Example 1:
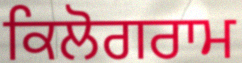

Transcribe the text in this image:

ਕਿਲੋਗਰਾਮ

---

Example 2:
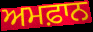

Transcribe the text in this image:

ਅਮਫ਼ਾਨ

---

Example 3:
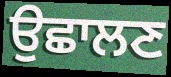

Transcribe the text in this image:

ਉਛਾਲਣ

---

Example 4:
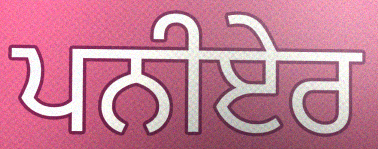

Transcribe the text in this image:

ਪਨੀਏਰ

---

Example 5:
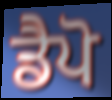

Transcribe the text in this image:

ਡੈਪੋ